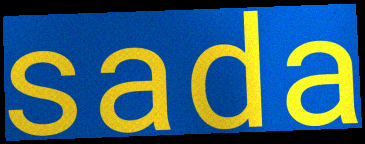
sada